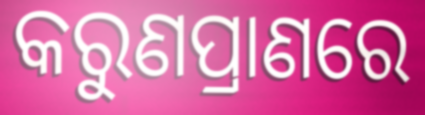
କରୁଣପ୍ରାଣରେ